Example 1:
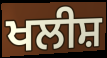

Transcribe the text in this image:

ਖਲੀਸ਼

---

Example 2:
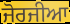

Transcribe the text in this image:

ਜੋਰਜੀਆ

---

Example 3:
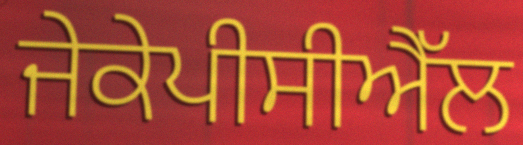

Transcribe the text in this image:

ਜੇਕੇਪੀਸੀਐੱਲ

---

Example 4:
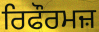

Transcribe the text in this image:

ਰਿਫੌਰਮਜ਼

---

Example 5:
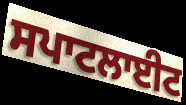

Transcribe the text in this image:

ਸਪਾਟਲਾਈਟ